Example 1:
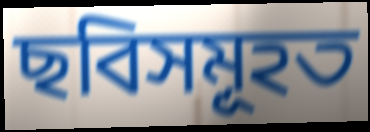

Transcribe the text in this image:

ছবিসমূহত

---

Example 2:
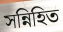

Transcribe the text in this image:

সন্নিহিত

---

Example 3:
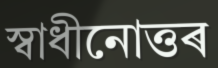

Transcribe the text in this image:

স্বাধীনোত্তৰ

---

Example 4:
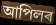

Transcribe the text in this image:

আপিলৰ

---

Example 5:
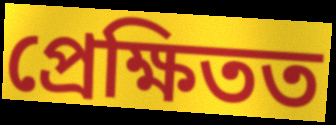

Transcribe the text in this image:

প্ৰেক্ষিতত